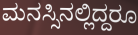
ಮನಸ್ಸಿನಲ್ಲಿದ್ದರೂ